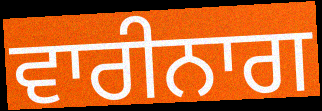
ਵਾਰੀਨਾਗ